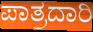
ಪಾತ್ರದಾರಿ